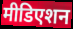
मीडिएशन